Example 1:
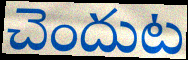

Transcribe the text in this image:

చెందుట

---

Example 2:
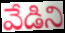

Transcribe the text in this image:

వేడిని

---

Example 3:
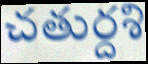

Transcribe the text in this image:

చతుర్దశి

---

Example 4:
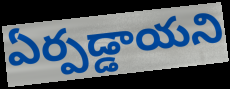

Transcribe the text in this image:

ఏర్పడ్డాయని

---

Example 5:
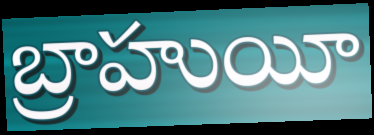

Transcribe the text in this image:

బ్రాహుయీ